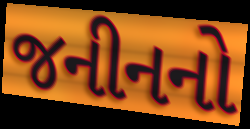
જનીનનો